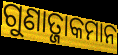
ଗୁଣାତ୍ଜାକମାନ